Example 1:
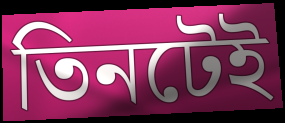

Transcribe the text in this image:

তিনটেই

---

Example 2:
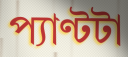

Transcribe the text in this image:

প্যাণ্টটা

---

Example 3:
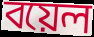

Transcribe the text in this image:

বয়েল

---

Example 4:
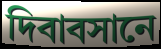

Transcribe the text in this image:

দিবাবসানে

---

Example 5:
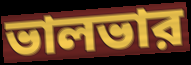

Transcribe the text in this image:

ভালভার